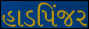
હાડપિંજર